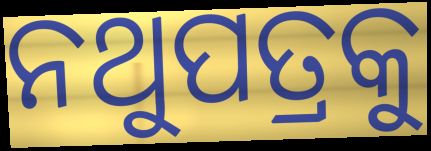
ନଥୁପତ୍ରକୁ